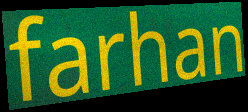
farhan